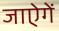
जाऐगें